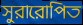
সুরারোপিত